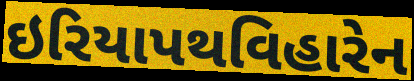
ઇરિયાપથવિહારેન